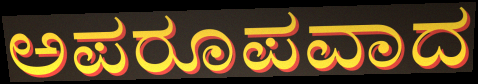
ಅಪರೂಪವಾದ